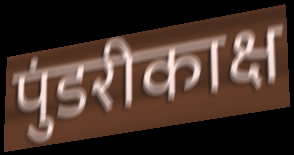
पुंडरीकाक्ष